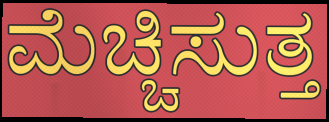
ಮೆಚ್ಚಿಸುತ್ತ